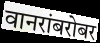
वानरांबरोबर